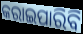
କରାଇପାରିବି